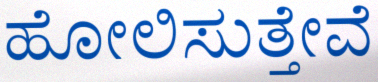
ಹೋಲಿಸುತ್ತೇವೆ